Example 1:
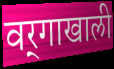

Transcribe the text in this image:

वर्गाखाली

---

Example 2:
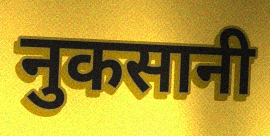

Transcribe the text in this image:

नुकसानी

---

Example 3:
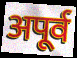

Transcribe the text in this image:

अपूर्व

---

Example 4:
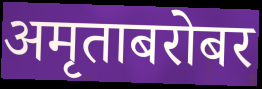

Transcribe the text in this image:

अमृताबरोबर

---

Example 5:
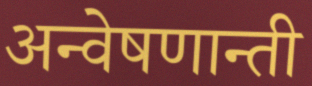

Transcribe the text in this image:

अन्वेषणान्ती